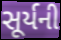
સૂર્યની